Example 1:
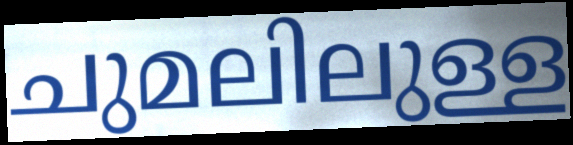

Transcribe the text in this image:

ചുമലിലുള്ള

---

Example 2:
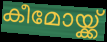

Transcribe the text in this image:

കീമോയ്ക്ക്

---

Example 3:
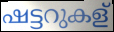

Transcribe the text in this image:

ഷട്ടറുകള്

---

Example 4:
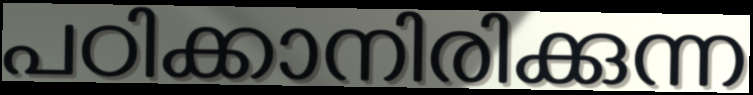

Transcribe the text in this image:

പഠിക്കാനിരിക്കുന്ന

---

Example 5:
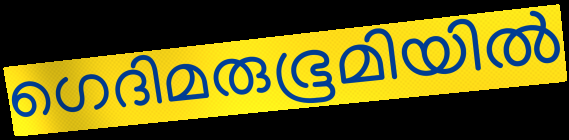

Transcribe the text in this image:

ഗെദിമരുഭൂമിയിൽ